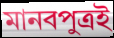
মানবপুত্রই